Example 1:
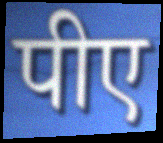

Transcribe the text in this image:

पीए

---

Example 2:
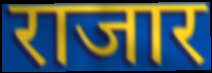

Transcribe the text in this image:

राजार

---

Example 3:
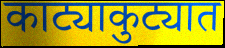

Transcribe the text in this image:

काट्याकुट्यात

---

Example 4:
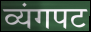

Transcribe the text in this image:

व्यंगपट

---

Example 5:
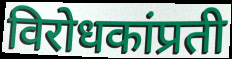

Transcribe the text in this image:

विरोधकांप्रती